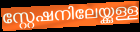
സ്റ്റേഷനിലേയ്ക്കുള്ള